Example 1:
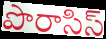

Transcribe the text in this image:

పొరాసిస్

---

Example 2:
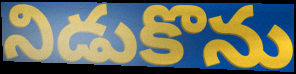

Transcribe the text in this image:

నిడుకొను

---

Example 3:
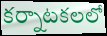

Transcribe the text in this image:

కర్నాటకలలో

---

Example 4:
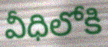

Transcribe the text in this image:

వీధిలోకి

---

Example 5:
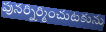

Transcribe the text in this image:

పునర్నిర్మించుటకును